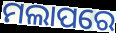
ମଲାପରେ